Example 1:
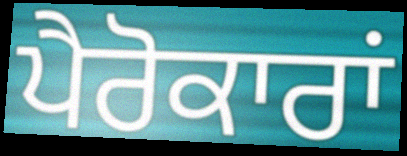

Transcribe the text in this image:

ਪੈਰੋਕਾਰਾਂ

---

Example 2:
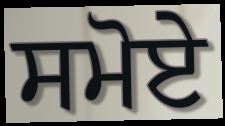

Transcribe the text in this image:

ਸਮੋਏ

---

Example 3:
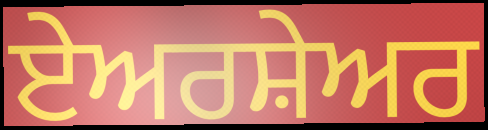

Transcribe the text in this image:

ਏਅਰਸ਼ੇਅਰ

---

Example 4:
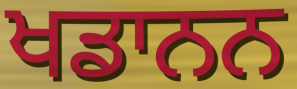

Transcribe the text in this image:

ਖਡਾਨਨ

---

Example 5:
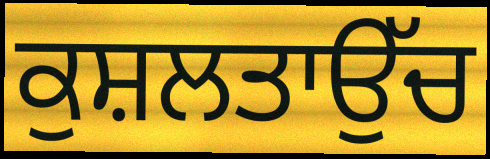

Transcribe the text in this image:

ਕੁਸ਼ਲਤਾਉੱਚ